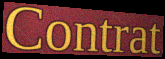
Contrat